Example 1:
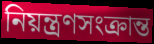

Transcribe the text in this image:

নিয়ন্ত্রণসংক্রান্ত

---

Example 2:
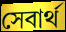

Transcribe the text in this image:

সেবার্থ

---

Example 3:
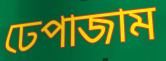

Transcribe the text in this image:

ঢেপাজাম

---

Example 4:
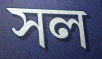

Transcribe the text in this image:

সল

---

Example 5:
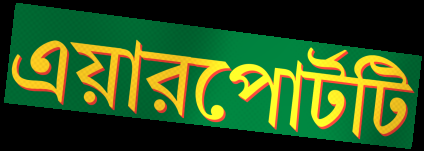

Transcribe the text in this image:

এয়ারপোর্টটি